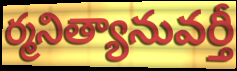
ర్మనిత్యానువర్తీ